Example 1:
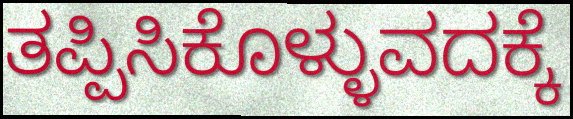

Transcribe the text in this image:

ತಪ್ಪಿಸಿಕೊಳ್ಳುವದಕ್ಕೆ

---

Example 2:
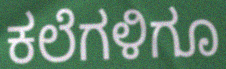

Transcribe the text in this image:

ಕಲೆಗಳಿಗೂ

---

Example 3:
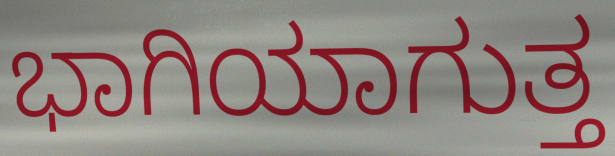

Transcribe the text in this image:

ಭಾಗಿಯಾಗುತ್ತ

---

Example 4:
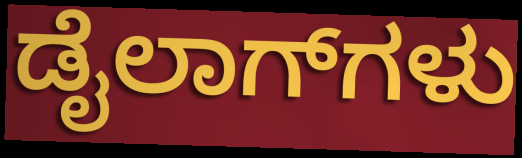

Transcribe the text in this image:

ಡೈಲಾಗ್‌ಗಳು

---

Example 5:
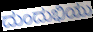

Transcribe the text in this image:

ದುಂದುಭಿಯು